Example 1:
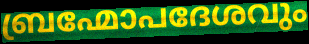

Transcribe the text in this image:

ബ്രഹ്മോപദേശവും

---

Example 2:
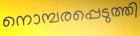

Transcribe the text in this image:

നൊമ്പരപ്പെടുത്തി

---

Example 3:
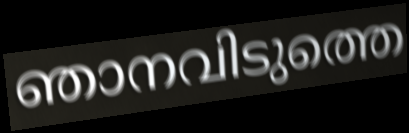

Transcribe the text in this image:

ഞാനവിടുത്തെ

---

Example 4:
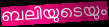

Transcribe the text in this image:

ബലിയുടെയും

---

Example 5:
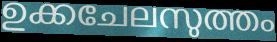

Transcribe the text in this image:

ഉക്കചേലസുത്തം